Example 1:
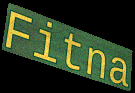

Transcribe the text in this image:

Fitna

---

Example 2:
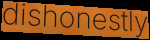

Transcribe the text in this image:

dishonestly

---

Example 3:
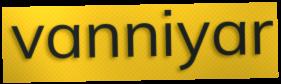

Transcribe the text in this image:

vanniyar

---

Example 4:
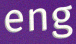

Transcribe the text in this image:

eng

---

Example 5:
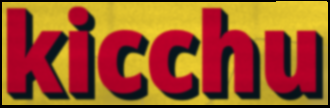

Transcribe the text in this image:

kicchu